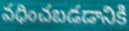
వధించబడడానికి